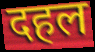
दहल